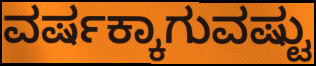
ವರ್ಷಕ್ಕಾಗುವಷ್ಟು